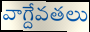
వాగ్దేవతలు